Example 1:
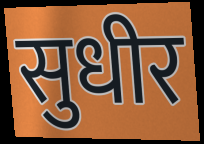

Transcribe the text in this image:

सुधीर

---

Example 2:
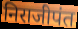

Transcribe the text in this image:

निराजीपंत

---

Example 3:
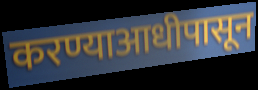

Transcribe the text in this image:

करण्याआधीपासून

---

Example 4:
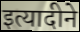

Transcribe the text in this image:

इत्यादीने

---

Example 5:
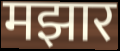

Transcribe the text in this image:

मझार